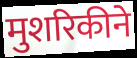
मुशरिकीने